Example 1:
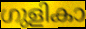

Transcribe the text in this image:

ഗുളികാ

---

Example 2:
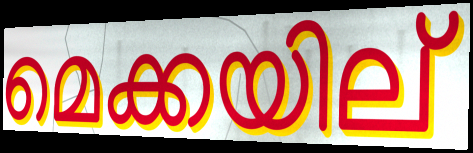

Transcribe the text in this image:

മെക്കയില്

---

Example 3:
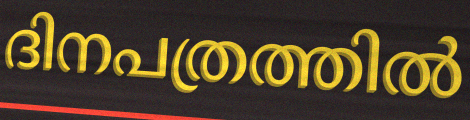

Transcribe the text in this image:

ദിനപത്രത്തിൽ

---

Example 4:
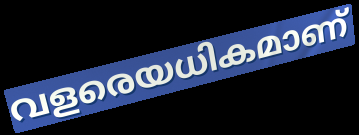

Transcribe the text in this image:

വളരെയധികമാണ്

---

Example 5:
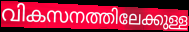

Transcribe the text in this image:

വികസനത്തിലേക്കുള്ള